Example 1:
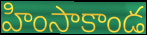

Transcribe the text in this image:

హింసాకాండ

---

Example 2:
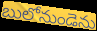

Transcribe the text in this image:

బులోనుండెను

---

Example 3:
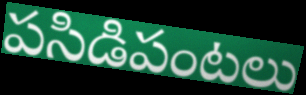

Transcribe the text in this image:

పసిడిపంటలు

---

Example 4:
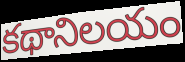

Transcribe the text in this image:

కథానిలయం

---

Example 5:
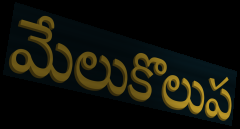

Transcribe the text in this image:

మేలుకొలుప